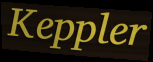
Keppler